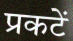
प्रकटें